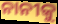
ନାନୀକୁ